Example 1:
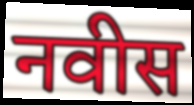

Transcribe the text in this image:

नवीस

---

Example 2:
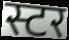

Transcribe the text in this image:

स्टर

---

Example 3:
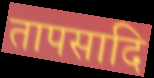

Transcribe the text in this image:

तापसादि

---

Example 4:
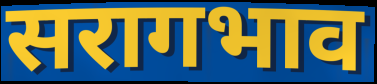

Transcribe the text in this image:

सरागभाव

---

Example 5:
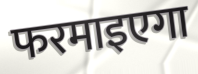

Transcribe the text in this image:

फरमाइएगा